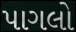
પાગલો